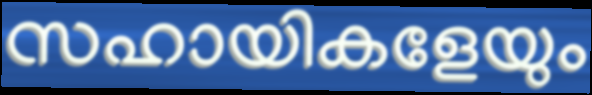
സഹായികളേയും